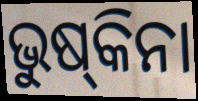
ଭୁଷ୍‌କିନା